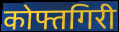
कोफ्तगिरी